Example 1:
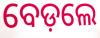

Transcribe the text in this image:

ବେଡ଼ଲେ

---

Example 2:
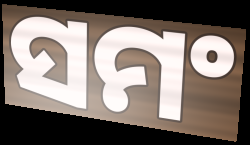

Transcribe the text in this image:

ସମଂ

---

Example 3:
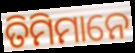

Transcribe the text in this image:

ତିମିମାନେ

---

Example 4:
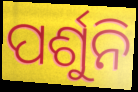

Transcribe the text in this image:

ପର୍ଶୁନି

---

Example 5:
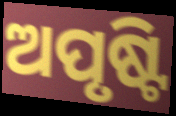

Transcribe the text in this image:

ଅପୃଷ୍ଟି